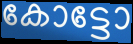
കോട്ടോ